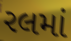
રલમાં